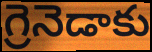
గ్రెనెడాకు